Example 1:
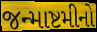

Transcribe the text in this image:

જન્માષ્ટમીનો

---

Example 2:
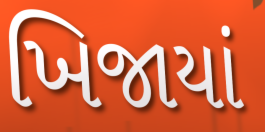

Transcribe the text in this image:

ખિજાયાં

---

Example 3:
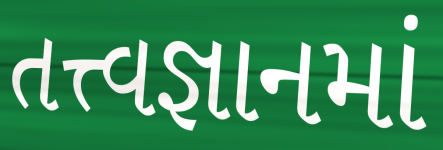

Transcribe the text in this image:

તત્ત્વજ્ઞાનમાં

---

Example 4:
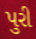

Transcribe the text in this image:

પુરી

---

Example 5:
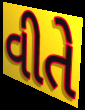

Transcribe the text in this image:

વીતે